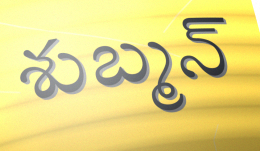
శుబ్మన్